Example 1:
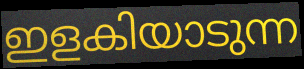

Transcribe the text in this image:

ഇളകിയാടുന്ന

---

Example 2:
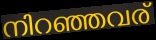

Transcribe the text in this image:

നിറഞ്ഞവര്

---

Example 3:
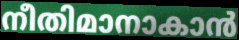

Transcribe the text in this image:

നീതിമാനാകാൻ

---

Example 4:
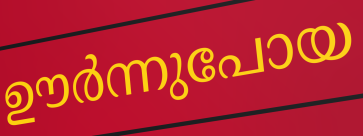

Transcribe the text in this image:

ഊർന്നുപോയ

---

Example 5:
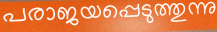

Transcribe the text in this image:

പരാജയപ്പെടുത്തുന്നു